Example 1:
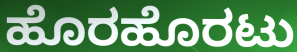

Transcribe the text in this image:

ಹೊರಹೊರಟು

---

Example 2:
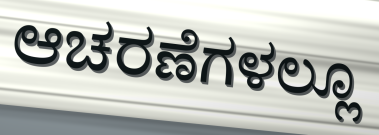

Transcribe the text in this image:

ಆಚರಣೆಗಳಲ್ಲೂ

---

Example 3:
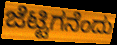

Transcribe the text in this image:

ಜೆಟ್ಟಿಗನೆಂದು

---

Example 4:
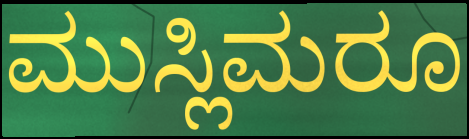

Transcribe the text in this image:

ಮುಸ್ಲಿಮರೂ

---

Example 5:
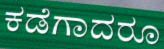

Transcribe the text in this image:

ಕಡೆಗಾದರೂ